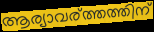
ആര്യാവര്ത്തത്തിന്